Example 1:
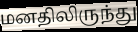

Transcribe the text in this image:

மனதிலிருந்து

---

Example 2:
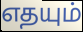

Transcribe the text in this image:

எதயும்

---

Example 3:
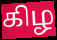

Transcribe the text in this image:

கிழ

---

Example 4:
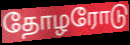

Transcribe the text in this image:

தோழரோடு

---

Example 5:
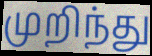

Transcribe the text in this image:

முறிந்து